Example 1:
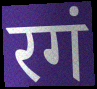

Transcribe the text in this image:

रगं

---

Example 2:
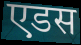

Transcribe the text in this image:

एडस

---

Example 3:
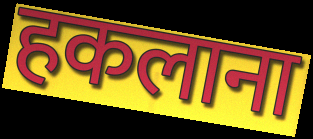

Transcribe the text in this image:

हकलाना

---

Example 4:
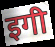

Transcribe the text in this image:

इगी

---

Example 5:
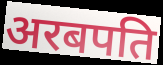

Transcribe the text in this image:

अरबपति